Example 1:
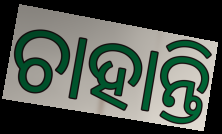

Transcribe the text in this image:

ଚାହାନ୍ତି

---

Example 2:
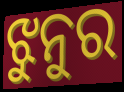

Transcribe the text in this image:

ଝୁନୁର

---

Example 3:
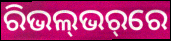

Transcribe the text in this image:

ରିଭଲ୍‌ଭର୍‌ରେ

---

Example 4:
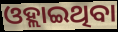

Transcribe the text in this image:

ଓହ୍ଲାଇଥିବା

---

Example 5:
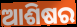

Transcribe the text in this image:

ଆଶିଷର